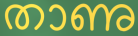
താണു